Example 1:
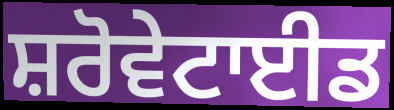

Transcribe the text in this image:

ਸ਼ਰੋਵੇਟਾਈਡ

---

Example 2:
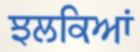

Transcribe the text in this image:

ਝਲਕਿਆਂ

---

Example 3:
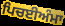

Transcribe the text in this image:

ਪਿਚਈਅੰਮਾ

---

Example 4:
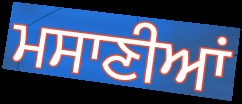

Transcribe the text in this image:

ਮਸਾਣੀਆਂ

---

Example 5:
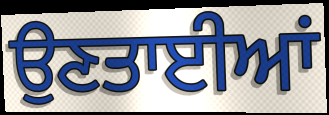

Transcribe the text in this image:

ਉਣਤਾਈਆਂ